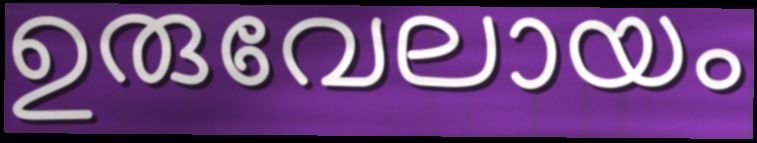
ഉരുവേലായം